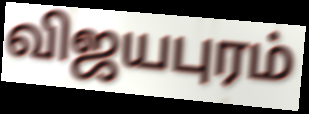
விஜயபுரம்